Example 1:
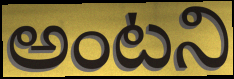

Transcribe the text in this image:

అంటని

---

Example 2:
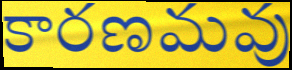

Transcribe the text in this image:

కారణమవు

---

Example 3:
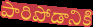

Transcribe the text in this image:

పారిపోడానికి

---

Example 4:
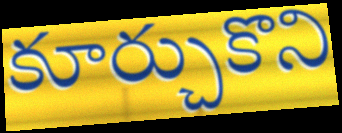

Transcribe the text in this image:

కూర్చుకొని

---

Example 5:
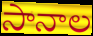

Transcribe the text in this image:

సానాల